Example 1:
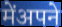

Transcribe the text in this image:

मेंअपने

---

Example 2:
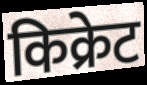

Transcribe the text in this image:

किक्रेट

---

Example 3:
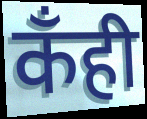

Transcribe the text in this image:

कँही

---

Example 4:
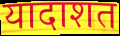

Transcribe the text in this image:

यादाशत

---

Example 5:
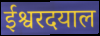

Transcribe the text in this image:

ईश्वरदयाल